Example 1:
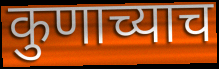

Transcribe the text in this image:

कुणाच्याच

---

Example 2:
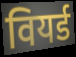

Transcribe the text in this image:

वियर्ड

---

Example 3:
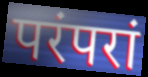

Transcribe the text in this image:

परंपरां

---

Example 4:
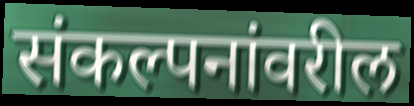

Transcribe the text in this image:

संकल्पनांवरील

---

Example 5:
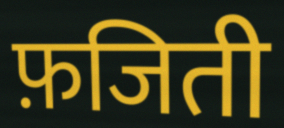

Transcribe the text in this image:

फ़जिती